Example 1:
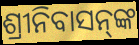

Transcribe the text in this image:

ଶ୍ରୀନିବାସନ୍‌ଙ୍କ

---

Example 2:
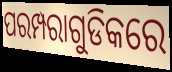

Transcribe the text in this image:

ପରମ୍ପରାଗୁଡିକରେ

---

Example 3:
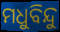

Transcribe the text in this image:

ମଧୁବିନ୍ଦୁ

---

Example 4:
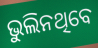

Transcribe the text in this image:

ଭୁଲିନଥିବେ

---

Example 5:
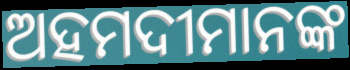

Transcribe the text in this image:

ଅହମଦୀମାନଙ୍କ